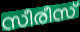
സീരീസ്